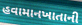
હવામાનખાતાની